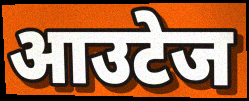
आउटेज